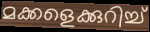
മക്കളെക്കുറിച്ച്